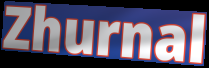
Zhurnal